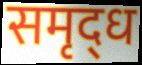
समृद्ध